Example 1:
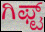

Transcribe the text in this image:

ಗಿಫ್ಟ್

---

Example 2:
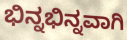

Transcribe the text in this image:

ಭಿನ್ನಭಿನ್ನವಾಗಿ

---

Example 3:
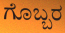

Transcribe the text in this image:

ಗೊಬ್ಬರ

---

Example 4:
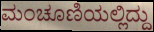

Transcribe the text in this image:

ಮಂಚೂಣಿಯಲ್ಲಿದ್ದು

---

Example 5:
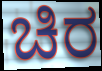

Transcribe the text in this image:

ಚಿರ